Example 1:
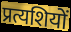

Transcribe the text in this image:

प्रत्यशियों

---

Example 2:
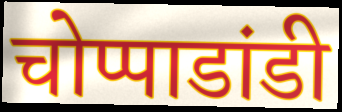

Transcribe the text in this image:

चोप्पाडांडी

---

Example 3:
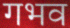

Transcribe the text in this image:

गभव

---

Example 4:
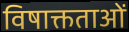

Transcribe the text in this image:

विषाक्तताओं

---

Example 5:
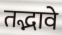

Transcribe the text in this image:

तद्भावे